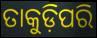
ତାକୁଡ଼ିପରି